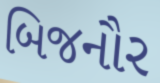
બિજનૌર